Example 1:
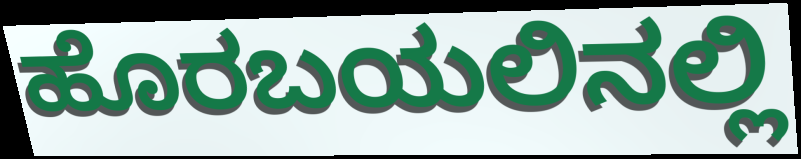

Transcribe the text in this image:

ಹೊರಬಯಲಿನಲ್ಲಿ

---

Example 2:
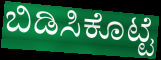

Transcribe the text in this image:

ಬಿಡಿಸಿಕೊಟ್ಟೆ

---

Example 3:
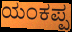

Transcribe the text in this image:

ಯಂಕಪ್ಪ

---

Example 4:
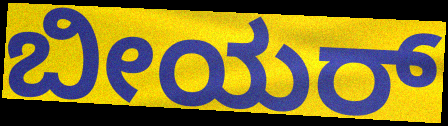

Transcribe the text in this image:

ಬೀಯರ್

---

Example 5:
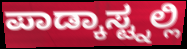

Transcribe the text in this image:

ಪಾಡ್ಕಾಸ್ಟ್ನಲ್ಲಿ